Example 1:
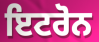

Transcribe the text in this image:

ਇਟਰੋਨ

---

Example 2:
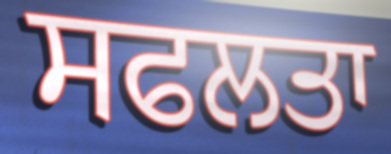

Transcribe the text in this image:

ਸਫਲਤਾ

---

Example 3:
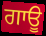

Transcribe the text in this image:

ਗਾਊ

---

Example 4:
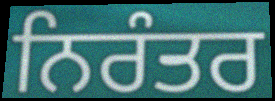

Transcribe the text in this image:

ਨਿਰੰਤਰ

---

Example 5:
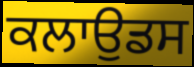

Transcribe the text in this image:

ਕਲਾਉਡਸ